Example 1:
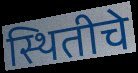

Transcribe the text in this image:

स्थितीचे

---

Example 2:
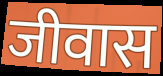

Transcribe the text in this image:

जीवास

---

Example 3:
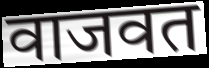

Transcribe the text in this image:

वाजवत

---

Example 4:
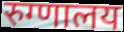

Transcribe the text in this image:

रुग्णालय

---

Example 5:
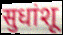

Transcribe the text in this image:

सुधांशू